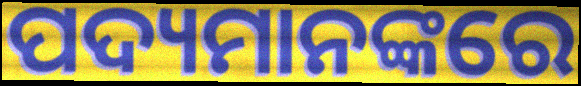
ପଦ୍ୟମାନଙ୍କରେ